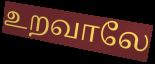
உறவாலே